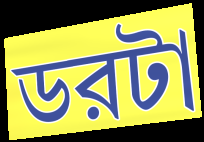
ডরটা